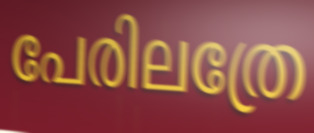
പേരിലത്രേ